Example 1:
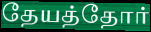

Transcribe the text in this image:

தேயத்தோர்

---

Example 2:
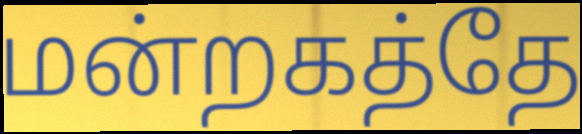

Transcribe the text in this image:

மன்றகத்தே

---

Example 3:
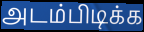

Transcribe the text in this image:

அடம்பிடிக்க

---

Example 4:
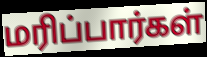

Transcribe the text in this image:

மரிப்பார்கள்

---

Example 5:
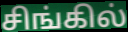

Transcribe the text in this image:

சிங்கில்